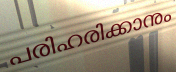
പരിഹരിക്കാനും